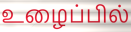
உழைப்பில்